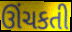
ઊંચકતી